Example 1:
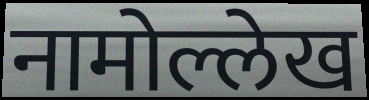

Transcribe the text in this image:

नामोल्लेख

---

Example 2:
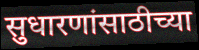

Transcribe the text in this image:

सुधारणांसाठीच्या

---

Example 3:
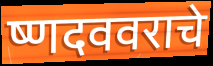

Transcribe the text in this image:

ष्णदववराचे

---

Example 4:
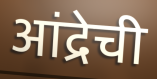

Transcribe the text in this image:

आंद्रेची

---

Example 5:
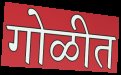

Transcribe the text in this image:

गोळीत